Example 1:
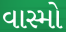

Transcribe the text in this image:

વાસ્મો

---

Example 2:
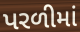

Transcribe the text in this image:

પરળીમાં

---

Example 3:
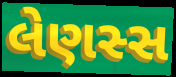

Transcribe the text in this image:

લેણસ્સ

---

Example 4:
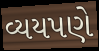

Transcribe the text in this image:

વ્યયપણે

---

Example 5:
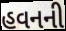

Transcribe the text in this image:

હવનની